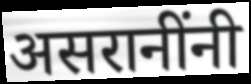
असरानींनी